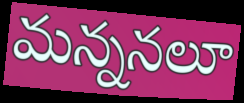
మన్ననలూ